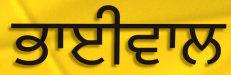
ਭਾਈਵਾਲ